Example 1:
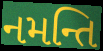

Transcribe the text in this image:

નમન્તિ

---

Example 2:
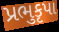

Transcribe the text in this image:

પ્રભુકૃપા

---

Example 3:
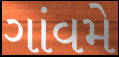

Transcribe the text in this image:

ગાંવમે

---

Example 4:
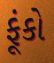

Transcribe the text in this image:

ફૂંકો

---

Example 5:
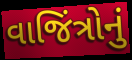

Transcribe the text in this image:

વાજિંત્રોનું